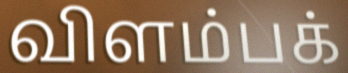
விளம்பக்